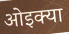
ओइक्या